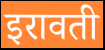
इरावती